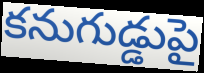
కనుగుడ్డుపై